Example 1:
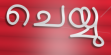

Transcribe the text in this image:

ചെയ്യു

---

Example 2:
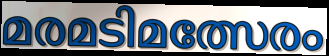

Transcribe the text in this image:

മരമടിമത്സേരം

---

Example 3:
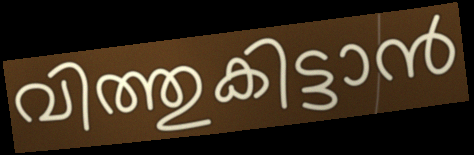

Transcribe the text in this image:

വിത്തുകിട്ടാൻ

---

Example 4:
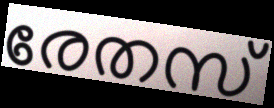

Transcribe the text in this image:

രേതസ്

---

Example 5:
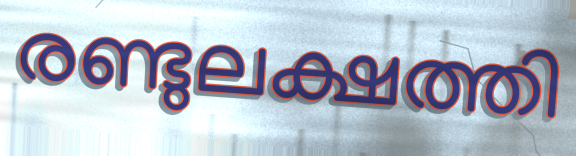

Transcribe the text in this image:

രണ്ടുലക്ഷത്തി